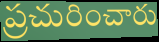
ప్రచురించారు